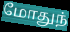
மோதுந்